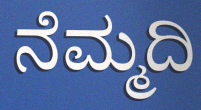
ನೆಮ್ಮದಿ